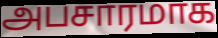
அபசாரமாக